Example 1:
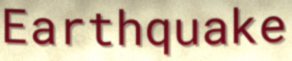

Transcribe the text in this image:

Earthquake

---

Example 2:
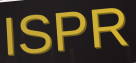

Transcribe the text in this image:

ISPR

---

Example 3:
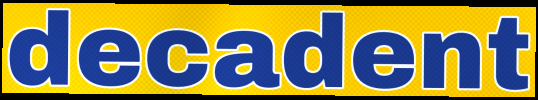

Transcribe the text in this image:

decadent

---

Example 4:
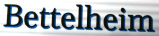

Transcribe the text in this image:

Bettelheim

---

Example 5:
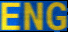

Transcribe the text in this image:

ENG